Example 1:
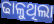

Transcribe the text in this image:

ଢାଳୁଥିଲା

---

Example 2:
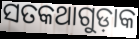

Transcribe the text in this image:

ସତକଥାଗୁଡ଼ାକ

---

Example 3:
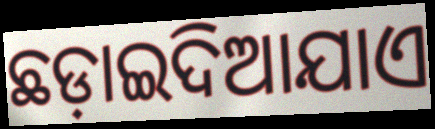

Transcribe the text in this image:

ଛଡ଼ାଇଦିଆଯାଏ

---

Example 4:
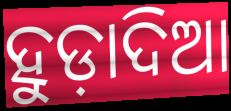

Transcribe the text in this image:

ହୁଡ଼ାଦିଆ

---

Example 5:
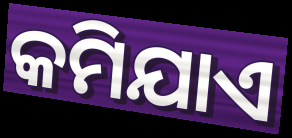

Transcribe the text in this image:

କମିଯାଏ